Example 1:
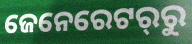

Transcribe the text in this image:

ଜେନେରେଟର୍‌ରୁ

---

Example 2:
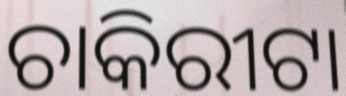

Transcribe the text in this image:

ଚାକିରୀଟା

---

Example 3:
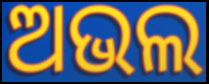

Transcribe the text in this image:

ଅଭଲ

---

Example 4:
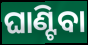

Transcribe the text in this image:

ଘାଣ୍ଟିବା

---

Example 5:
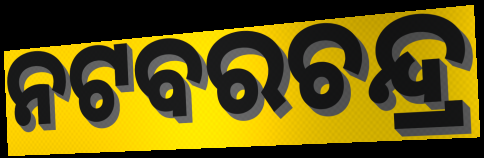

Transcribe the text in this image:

ନଟବରଚନ୍ଦ୍ର